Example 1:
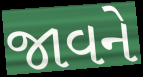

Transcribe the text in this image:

જાવને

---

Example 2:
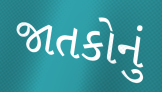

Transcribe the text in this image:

જાતકોનું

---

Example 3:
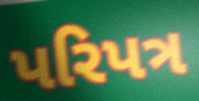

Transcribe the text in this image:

પરિપત્ર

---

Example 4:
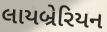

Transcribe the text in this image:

લાયબ્રેરિયન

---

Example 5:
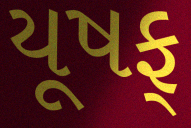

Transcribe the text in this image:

યૂષફ્